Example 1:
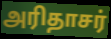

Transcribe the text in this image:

அரிதாசர்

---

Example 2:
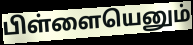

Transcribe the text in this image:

பிள்ளையெனும்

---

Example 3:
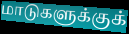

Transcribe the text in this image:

மாடுகளுக்குக்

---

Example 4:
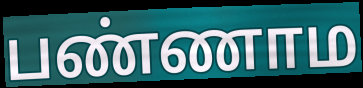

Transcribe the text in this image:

பண்ணாம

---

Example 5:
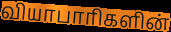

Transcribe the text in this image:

வியாபாரிகளின்